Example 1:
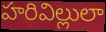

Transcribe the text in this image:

హరివిల్లులా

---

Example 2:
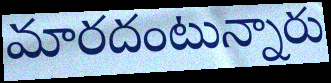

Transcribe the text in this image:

మారదంటున్నారు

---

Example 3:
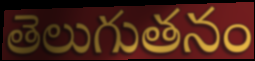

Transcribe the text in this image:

తెలుగుతనం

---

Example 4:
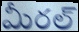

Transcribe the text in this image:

మీరల్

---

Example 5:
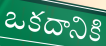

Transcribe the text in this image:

ఒకదానికి